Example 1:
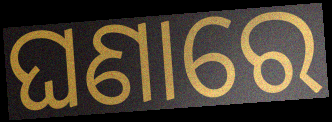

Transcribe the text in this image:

ଘଣାରେ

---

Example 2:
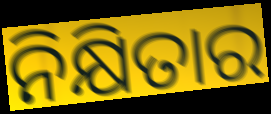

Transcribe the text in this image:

ନିକ୍ଷିତାର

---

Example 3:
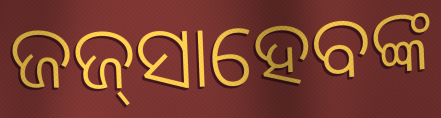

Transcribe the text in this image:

ଜଜ୍‌ସାହେବଙ୍କ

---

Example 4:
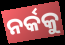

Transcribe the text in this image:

ନର୍କକୁ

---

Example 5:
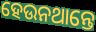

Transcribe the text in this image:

ହେଉନଥାନ୍ତେ